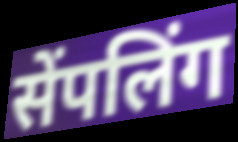
सेंपलिंग